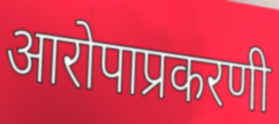
आरोपाप्रकरणी